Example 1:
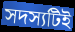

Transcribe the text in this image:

সদস্যটিই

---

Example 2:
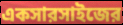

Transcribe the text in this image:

একসারসাইজের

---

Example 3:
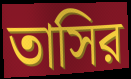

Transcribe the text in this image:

তাসির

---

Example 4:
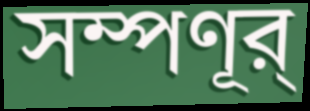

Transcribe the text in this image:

সম্পণূর্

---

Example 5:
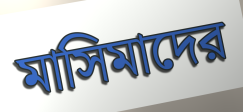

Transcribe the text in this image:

মাসিমাদের